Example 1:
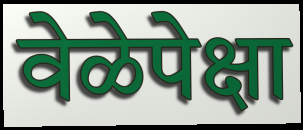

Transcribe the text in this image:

वेळेपेक्षा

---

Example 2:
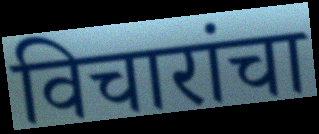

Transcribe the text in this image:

विचारांचा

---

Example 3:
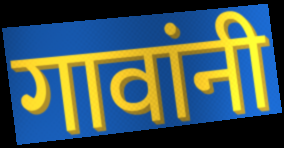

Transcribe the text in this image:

गावांनी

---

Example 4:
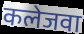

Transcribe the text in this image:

कलेजवा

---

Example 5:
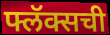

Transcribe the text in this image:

फ्लॅक्सची